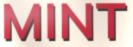
MINT